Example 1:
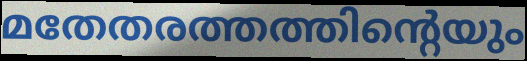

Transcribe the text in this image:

മതേതരത്തത്തിന്റെയും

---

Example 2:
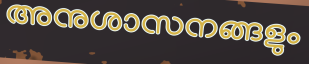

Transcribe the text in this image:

അനുശാസനങ്ങളും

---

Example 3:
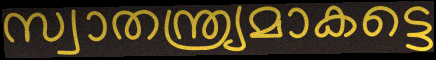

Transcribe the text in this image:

സ്വാതന്ത്ര്യമാകട്ടെ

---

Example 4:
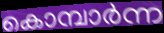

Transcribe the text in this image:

കൊമ്പാർന്ന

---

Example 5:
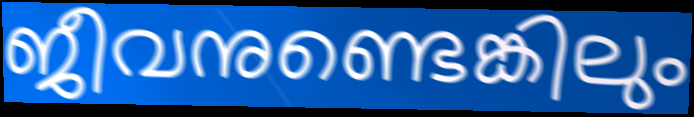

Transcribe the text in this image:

ജീവനുണ്ടെങ്കിലും